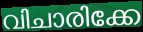
വിചാരിക്കേ